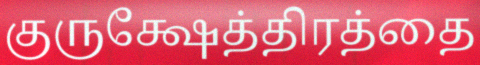
குருக்ஷேத்திரத்தை